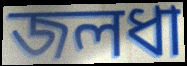
জলধা